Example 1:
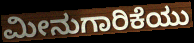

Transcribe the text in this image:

ಮೀನುಗಾರಿಕೆಯು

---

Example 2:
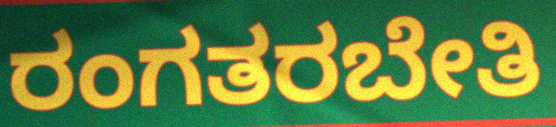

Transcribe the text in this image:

ರಂಗತರಬೇತಿ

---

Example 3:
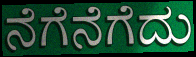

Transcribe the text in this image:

ನೆಗೆನೆಗೆದು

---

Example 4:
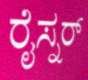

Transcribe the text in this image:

ರೈಸ್ನರ್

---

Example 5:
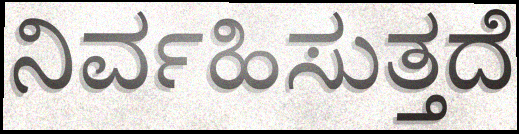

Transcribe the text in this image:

ನಿರ್ವಹಿಸುತ್ತದೆ